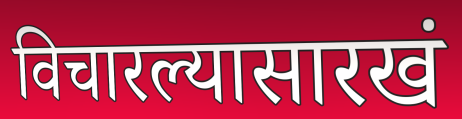
विचारल्यासारखं